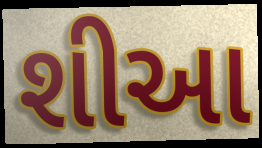
શીઆ